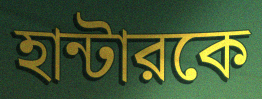
হান্টারকে